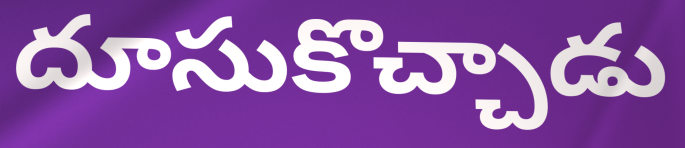
దూసుకొచ్చాడు